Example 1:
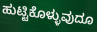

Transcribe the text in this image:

ಹುಟ್ಟಿಕೊಳ್ಳುವುದೂ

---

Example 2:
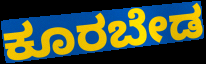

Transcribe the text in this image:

ಕೂರಬೇಡ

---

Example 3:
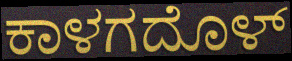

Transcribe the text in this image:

ಕಾಳಗದೊಳ್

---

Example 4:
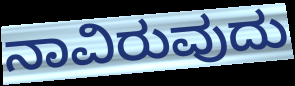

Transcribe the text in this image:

ನಾವಿರುವುದು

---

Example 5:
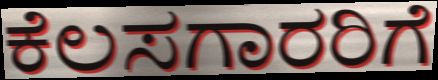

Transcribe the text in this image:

ಕೆಲಸಗಾರರಿಗೆ